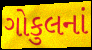
ગોકુલનાં